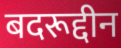
बदरूद्दीन